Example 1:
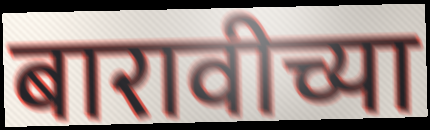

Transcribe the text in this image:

बारावीच्या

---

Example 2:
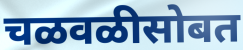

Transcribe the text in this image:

चळवळीसोबत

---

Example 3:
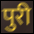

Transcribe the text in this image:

पुरी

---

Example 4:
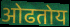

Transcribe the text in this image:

ओढतोय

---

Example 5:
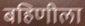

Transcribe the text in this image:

बहिणीला